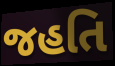
જહતિ